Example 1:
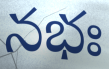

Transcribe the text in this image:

నభః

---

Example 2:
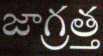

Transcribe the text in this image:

జాగ్రత్త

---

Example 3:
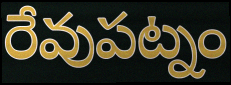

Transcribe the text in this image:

రేవుపట్నం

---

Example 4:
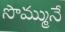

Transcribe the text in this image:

సొమ్మునే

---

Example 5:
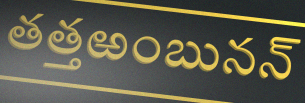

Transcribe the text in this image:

తత్తఱంబునన్